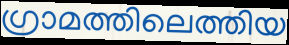
ഗ്രാമത്തിലെത്തിയ